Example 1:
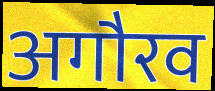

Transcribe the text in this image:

अगौरव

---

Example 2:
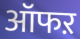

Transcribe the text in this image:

ऑफऱ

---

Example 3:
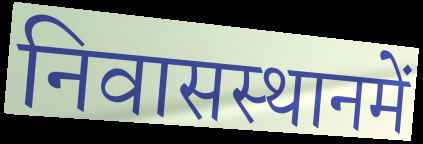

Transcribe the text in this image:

निवासस्थानमें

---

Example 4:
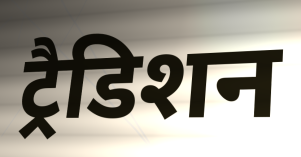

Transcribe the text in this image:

ट्रैडिशन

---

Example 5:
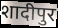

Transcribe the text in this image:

शादीपुर